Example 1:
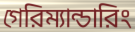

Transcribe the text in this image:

গেরিম্যান্ডারিং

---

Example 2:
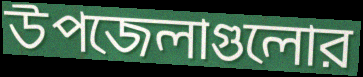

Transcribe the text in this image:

উপজেলাগুলোর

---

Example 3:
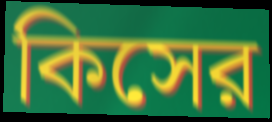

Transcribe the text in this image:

কিসের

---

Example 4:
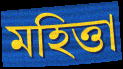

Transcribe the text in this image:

মহিত্তা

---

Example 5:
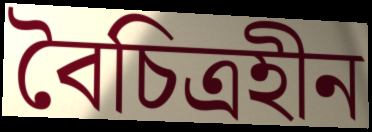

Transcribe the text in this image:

বৈচিত্রহীন